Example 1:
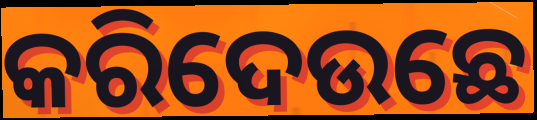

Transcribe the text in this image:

କରିଦେଉଛେ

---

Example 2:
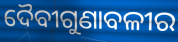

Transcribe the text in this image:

ଦୈବୀଗୁଣାବଳୀର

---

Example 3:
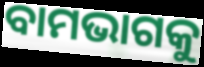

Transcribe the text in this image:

ବାମଭାଗକୁ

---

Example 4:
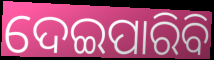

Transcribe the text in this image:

ଦେଇପାରିବି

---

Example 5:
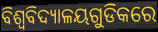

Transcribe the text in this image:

ବିଶ୍ୱବିଦ୍ୟାଳୟଗୁଡିକରେ